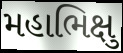
મહાભિક્ષુ